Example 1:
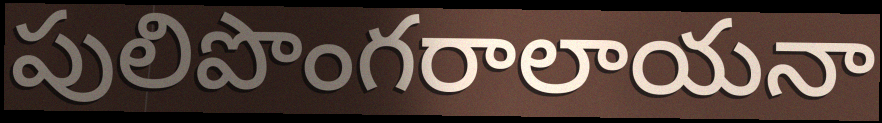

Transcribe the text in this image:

పులిపొంగరాలాయనా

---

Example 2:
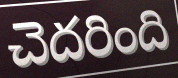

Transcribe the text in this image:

చెదరింది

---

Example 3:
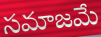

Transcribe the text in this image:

సమాజమే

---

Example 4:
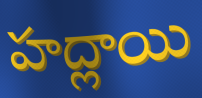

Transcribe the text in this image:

హద్లాయి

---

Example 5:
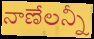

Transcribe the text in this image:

నాణేలన్నీ